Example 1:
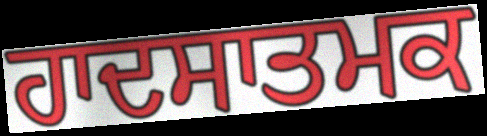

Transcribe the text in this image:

ਹਾਦਸਾਤਮਕ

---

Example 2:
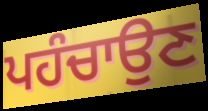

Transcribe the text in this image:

ਪਹੰਚਾਉਣ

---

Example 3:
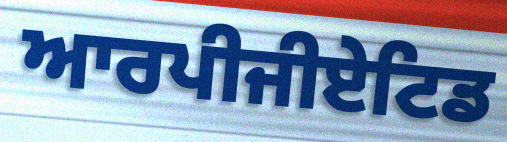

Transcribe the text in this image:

ਆਰਪੀਜੀਏਟਿਡ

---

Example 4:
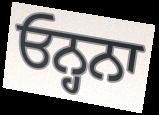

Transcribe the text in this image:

ਓਨ੍ਹਨਾ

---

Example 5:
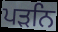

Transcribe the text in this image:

ਪੜਨਿ